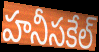
హనీసకేల్